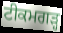
ਟੀਕਮਗੜ੍ਹ